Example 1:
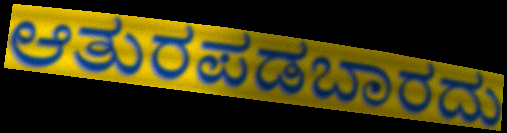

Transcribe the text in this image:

ಆತುರಪಡಬಾರದು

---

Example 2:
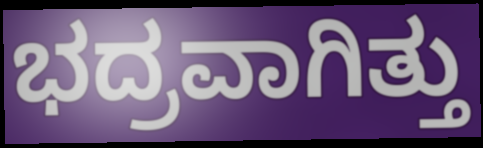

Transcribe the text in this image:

ಭದ್ರವಾಗಿತ್ತು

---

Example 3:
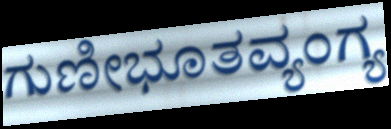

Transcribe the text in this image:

ಗುಣೀಭೂತವ್ಯಂಗ್ಯ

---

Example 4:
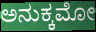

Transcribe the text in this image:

ಅನುಕ್ಕಮೋ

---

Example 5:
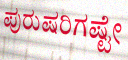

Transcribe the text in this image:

ಪುರುಷರಿಗಷ್ಟೇ